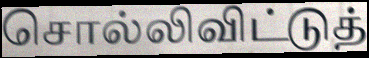
சொல்லிவிட்டுத்